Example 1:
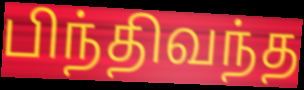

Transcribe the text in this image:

பிந்திவந்த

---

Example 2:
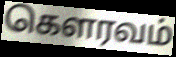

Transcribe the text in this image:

கெளரவம்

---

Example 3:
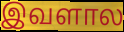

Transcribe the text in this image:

இவளால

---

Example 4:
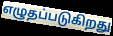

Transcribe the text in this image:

எழுதப்படுகிறது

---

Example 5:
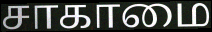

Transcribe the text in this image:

சாகாமை